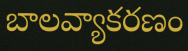
బాలవ్యాకరణం